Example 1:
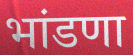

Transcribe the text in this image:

भांडणा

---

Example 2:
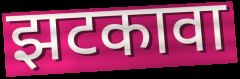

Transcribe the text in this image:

झटकावा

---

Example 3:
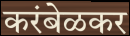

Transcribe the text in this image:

करंबेळकर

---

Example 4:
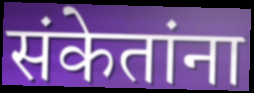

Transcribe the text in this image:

संकेतांना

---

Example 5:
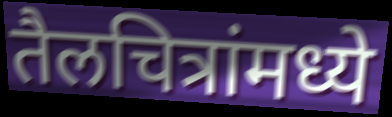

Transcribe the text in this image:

तैलचित्रांमध्ये